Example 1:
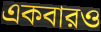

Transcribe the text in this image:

একবারও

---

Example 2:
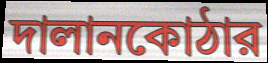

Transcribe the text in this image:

দালানকোঠার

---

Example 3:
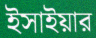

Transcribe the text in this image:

ইসাইয়ার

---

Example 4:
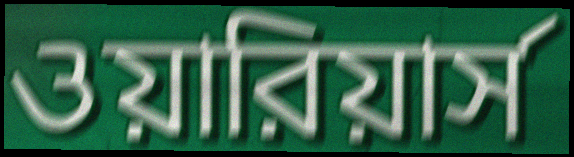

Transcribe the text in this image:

ওয়ারিয়ার্স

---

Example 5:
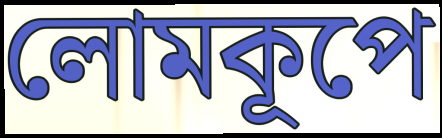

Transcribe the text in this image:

লোমকূপে